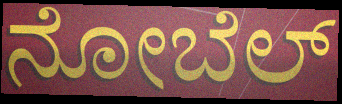
ನೋಬೆಲ್